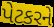
પેટકરને